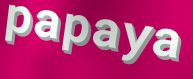
papaya